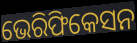
ଭେରିଫିକେସନ